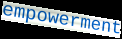
empowerment